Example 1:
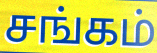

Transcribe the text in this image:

சங்கம்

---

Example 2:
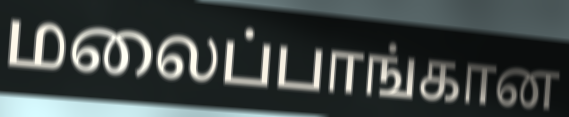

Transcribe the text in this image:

மலைப்பாங்கான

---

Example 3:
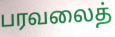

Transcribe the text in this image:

பரவலைத்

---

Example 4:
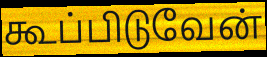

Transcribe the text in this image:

கூப்பிடுவேன்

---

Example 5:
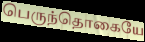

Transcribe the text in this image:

பெருந்தொகையே